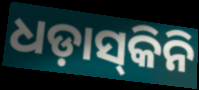
ଧଡ଼ାସ୍‌କିନି